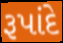
રૂપાંદે